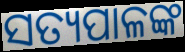
ସତ୍ୟପାଳଙ୍କ